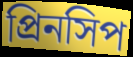
প্রিনসিপ